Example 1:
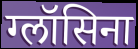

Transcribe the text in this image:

ग्लॉसिना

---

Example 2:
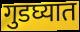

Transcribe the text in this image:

गुडघ्यात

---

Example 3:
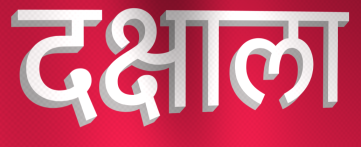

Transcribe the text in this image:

दक्षाला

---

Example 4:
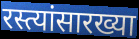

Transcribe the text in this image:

रस्त्यांसारख्या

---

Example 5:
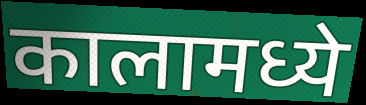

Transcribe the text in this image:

कालामध्ये